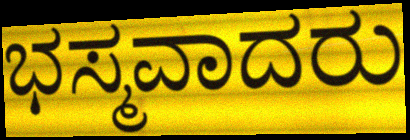
ಭಸ್ಮವಾದರು